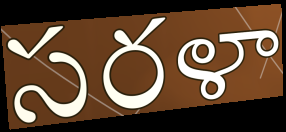
సరళా